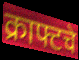
क्राफ्टचे